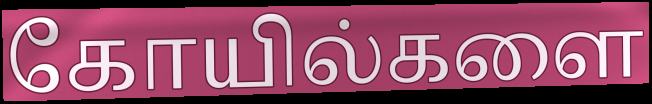
கோயில்களை